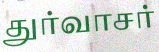
துர்வாசர்